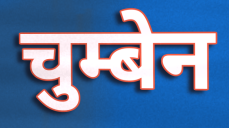
चुम्बेन